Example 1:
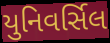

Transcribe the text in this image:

યુનિવર્સિલ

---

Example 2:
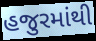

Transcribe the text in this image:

હજુરમાંથી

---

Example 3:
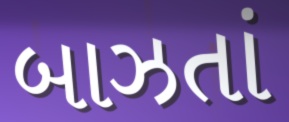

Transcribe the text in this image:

બાઝતાં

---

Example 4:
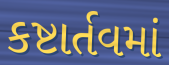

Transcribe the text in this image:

કષ્ટાર્તવમાં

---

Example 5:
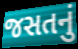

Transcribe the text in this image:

જસતનું